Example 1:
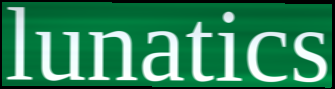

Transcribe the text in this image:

lunatics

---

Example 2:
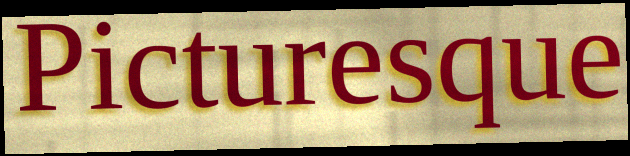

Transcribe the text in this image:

Picturesque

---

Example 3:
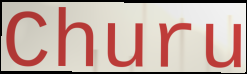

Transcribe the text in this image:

Churu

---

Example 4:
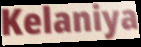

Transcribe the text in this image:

Kelaniya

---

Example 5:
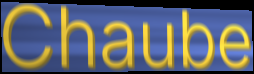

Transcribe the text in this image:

Chaube